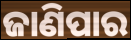
ଜାଣିପାର